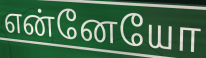
என்னேயோ